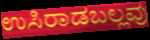
ಉಸಿರಾಡಬಲ್ಲವು